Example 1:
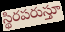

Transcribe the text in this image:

స్థిరపరుస్తూ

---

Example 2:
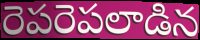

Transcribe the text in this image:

రెపరెపలాడిన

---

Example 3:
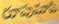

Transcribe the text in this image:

రూపుమాపి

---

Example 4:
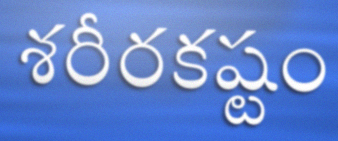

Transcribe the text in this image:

శరీరకష్టం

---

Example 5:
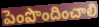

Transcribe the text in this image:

పెంపొందించాలి